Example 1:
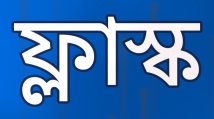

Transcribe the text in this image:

ফ্লাস্ক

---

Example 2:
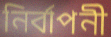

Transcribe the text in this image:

নির্বাপনী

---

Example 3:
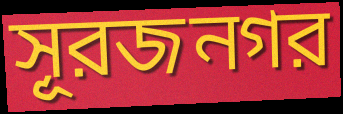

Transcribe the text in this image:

সূরজনগর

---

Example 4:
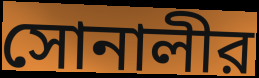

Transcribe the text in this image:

সোনালীর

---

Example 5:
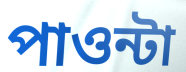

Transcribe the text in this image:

পাওন্টা